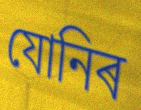
যোনিৰ